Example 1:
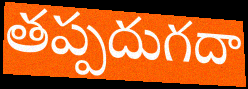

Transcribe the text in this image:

తప్పదుగదా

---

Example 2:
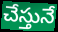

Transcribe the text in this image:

చేస్తునే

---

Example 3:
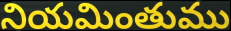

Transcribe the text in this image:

నియమింతుము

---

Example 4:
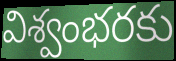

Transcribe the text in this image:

విశ్వంభరకు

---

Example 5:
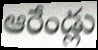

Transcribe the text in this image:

ఆరేండ్లు